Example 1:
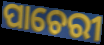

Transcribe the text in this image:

ପାଚେରୀ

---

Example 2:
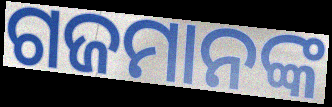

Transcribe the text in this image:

ଗଜମାନଙ୍କ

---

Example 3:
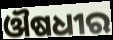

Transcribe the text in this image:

ଔଷଧୀର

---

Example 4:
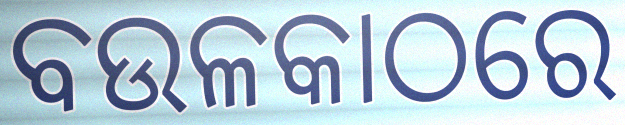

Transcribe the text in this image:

ବଉଳକାଠରେ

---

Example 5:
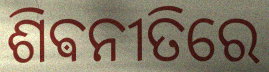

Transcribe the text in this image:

ଶିଵନୀତିରେ